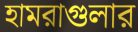
হামরাগুলার